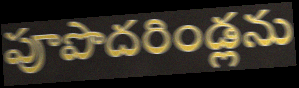
పూపొదరిండ్లను